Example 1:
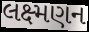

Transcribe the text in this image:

લક્ષ્મણન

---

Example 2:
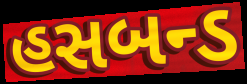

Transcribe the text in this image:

હસબન્ડ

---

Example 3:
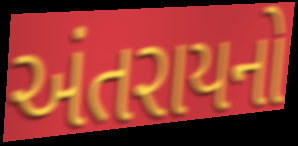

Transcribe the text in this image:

અંતરાયનો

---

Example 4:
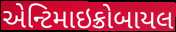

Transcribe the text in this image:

એન્ટિમાઇક્રોબાયલ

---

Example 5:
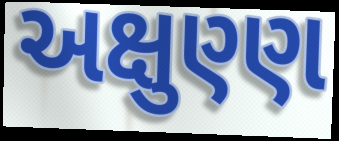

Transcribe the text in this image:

અક્ષુણ્ણ